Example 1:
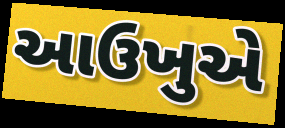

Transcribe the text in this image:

આઉખુએ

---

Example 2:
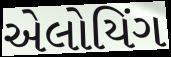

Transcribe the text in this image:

એલોયિંગ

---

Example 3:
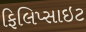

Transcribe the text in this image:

ફિલિપ્સાઇટ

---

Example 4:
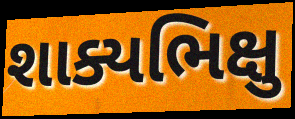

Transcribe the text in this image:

શાક્યભિક્ષુ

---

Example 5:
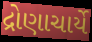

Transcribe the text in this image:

દ્રોણાચાર્યે